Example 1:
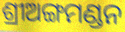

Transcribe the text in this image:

ଶ୍ରୀଅଙ୍ଗମଣ୍ଡନ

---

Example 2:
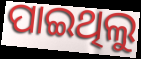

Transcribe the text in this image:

ପାଇଥିଲୁ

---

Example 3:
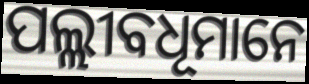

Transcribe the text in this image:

ପଲ୍ଲୀବଧୂମାନେ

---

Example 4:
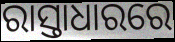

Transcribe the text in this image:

ରାସ୍ତାଧାରରେ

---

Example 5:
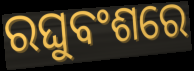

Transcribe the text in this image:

ରଘୁବଂଶରେ